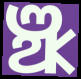
ଞ୍ଝ